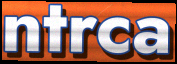
ntrca